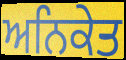
ਅਨਿਕੇਤ